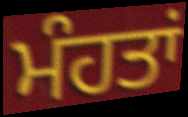
ਮੰਹਤਾਂ